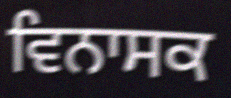
ਵਿਨਾਸਕ